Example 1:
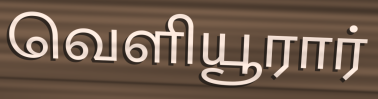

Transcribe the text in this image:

வெளியூரார்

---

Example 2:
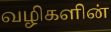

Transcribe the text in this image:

வழிகளின்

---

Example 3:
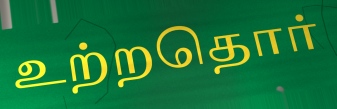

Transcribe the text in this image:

உற்றதொர்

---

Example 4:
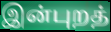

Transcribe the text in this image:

இன்புறத்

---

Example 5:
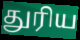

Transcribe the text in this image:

துரிய